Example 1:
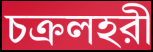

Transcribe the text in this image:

চক্রলহরী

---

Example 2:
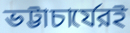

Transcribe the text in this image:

ভট্টাচার্যেরই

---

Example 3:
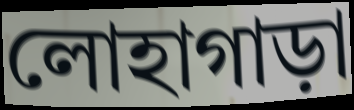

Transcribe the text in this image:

লোহাগাড়া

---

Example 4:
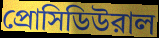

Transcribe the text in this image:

প্রোসিডিউরাল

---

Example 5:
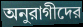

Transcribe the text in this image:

অনুরাগীদের